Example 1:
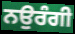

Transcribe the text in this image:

ਨਉਰੰਗੀ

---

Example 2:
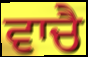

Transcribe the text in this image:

ਵਾਚੈ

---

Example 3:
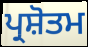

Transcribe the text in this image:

ਪ੍ਰਸ਼ੋਤਮ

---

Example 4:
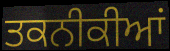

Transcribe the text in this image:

ਤਕਨੀਕੀਆਂ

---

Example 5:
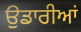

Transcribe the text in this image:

ਉੁਡਾਰੀਆਂ